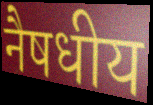
नैषधीय